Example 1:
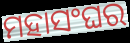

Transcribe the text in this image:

ମହାସଂଘର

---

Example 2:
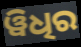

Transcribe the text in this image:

ୱିଧିର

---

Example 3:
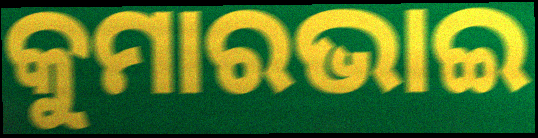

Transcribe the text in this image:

କୁମାରଭାଇ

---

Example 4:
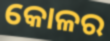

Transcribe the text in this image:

କୋଳର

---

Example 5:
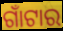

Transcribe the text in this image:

ଗାଁଟାର